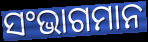
ସଂଭାଗମାନ